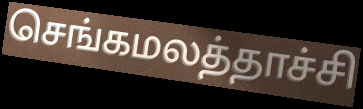
செங்கமலத்தாச்சி